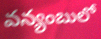
వన్యంబులో